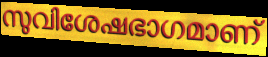
സുവിശേഷഭാഗമാണ്